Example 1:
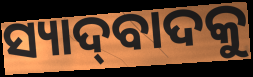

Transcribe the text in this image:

ସ୍ୟାଦ୍‌ବାଦକୁ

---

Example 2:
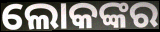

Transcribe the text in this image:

ଲୋକଙ୍କର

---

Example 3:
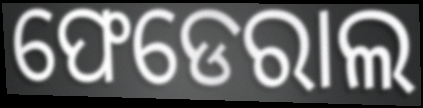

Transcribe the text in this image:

ଫେଡେରାଲ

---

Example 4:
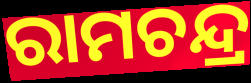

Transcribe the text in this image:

ରାମଚନ୍ଦ୍ର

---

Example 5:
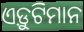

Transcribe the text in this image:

ଏଡ଼ୁଟିମାନ